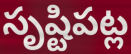
సృష్టిపట్ల